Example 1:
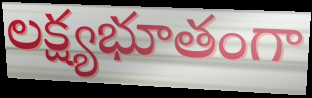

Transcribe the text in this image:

లక్ష్యభూతంగా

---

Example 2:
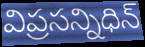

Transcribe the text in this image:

విప్రసన్నిధిన్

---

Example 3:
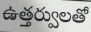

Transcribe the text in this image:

ఉత్తర్వులతో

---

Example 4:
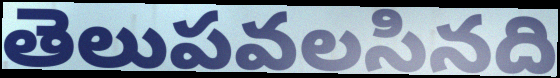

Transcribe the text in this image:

తెలుపవలసినది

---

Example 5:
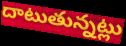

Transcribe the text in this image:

దాటుతున్నట్లు